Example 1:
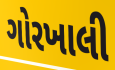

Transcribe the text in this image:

ગોરખાલી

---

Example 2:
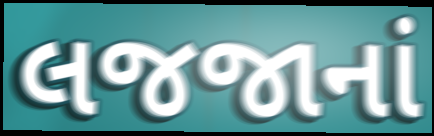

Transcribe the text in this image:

લજજાનાં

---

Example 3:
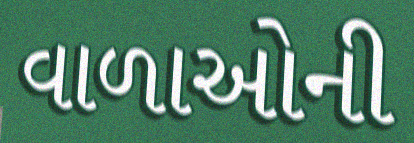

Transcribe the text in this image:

વાળાઓની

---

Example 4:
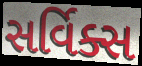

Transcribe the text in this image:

સર્વિક્સ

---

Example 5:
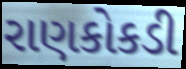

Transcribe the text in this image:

રાણકોકડી